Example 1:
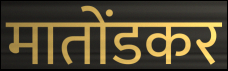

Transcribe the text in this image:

मातोंडकर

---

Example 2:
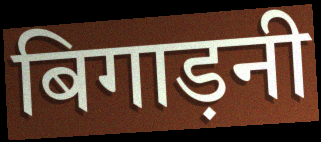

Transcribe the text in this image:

बिगाड़नी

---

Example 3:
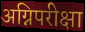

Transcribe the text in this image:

अग्निपरीक्षा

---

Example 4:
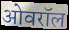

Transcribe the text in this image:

ओवरॉल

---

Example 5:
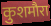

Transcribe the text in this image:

कुशमौरा